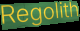
Regolith